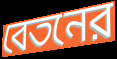
বেতনের